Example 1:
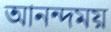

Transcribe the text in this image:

আনন্দময়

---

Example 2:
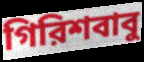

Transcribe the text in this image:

গিরিশবাবু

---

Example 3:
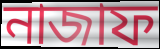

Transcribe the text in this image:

নাজাফ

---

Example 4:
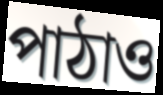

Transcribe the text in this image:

পাঠাও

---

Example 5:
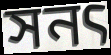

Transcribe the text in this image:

সনৎ